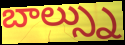
బాల్స్ను